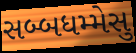
સબ્બધમ્મેસુ